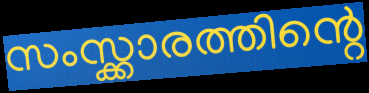
സംസ്ക്കാരത്തിന്റെ